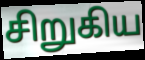
சிறுகிய